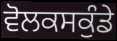
ਵੋਲਕਸਕੁੰਡੇ